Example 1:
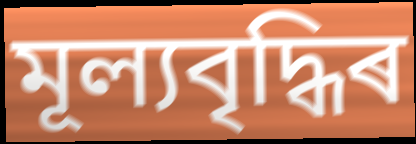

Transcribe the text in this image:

মূল্যবৃদ্ধিৰ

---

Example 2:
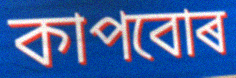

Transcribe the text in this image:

কাপবোৰ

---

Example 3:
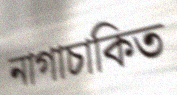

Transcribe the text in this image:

নাগাচাকিত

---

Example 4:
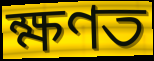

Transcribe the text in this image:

ক্ষণত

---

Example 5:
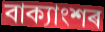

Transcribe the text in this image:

বাক্যাংশৰ